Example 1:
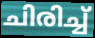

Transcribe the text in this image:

ചിരിച്ച്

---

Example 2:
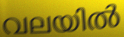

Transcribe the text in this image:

വലയിൽ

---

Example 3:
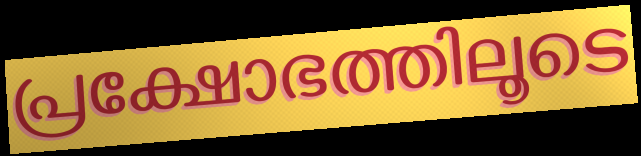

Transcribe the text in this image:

പ്രക്ഷോഭത്തിലൂടെ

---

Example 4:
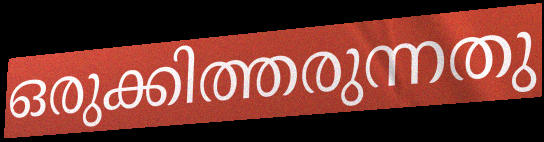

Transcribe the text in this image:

ഒരുക്കിത്തരുന്നതു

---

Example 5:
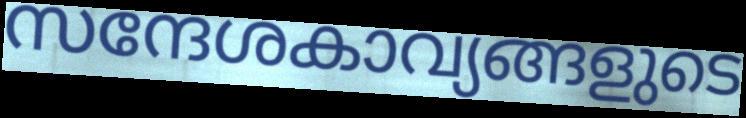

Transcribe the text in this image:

സന്ദേശകാവ്യങ്ങളുടെ